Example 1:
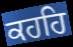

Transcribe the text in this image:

ਕਹਹਿ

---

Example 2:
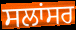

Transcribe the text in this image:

ਸਲਾਂਸਰ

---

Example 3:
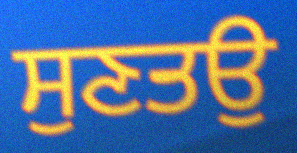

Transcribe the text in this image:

ਸੁਣਤਉ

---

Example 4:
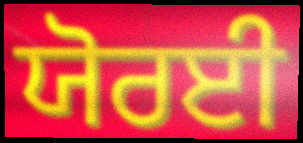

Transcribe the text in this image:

ਯੋਰਈ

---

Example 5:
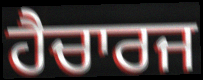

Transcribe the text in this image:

ਹੈਚਾਰਜ